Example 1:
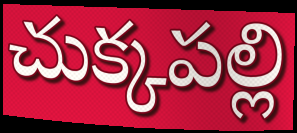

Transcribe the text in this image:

చుక్కపల్లి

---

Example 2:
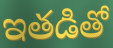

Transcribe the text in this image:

ఇతడితో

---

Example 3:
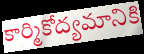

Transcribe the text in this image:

కార్మికోద్యమానికి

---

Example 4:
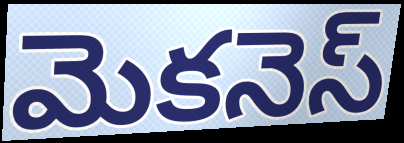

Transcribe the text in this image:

మెకనెస్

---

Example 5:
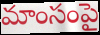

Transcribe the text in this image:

మాంసంపై